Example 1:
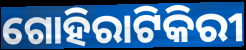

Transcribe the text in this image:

ଗୋହିରାଟିକିରୀ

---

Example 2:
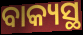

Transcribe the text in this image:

ବାକ୍ୟସ୍ଥ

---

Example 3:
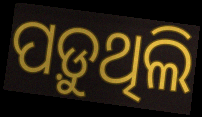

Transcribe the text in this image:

ପଡ଼ୁଥିଲି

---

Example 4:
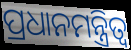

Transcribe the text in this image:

ପ୍ରଧାନମନ୍ତ୍ରିତ୍ଵ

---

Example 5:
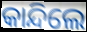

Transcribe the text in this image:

କାନ୍ଦିଲେ